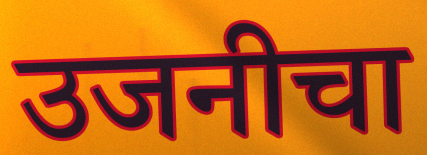
उजनीचा